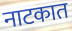
नाटकात